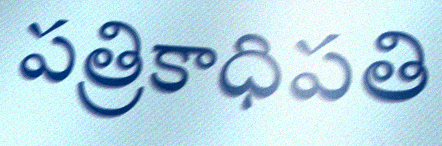
పత్రికాధిపతి